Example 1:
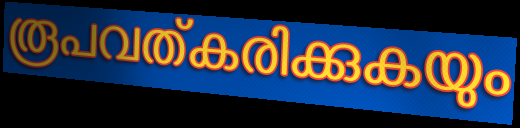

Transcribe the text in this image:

രൂപവത്കരിക്കുകയും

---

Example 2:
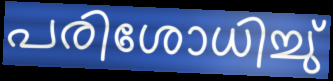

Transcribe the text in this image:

പരിശോധിച്ചു്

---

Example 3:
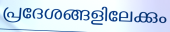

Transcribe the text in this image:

പ്രദേശങ്ങളിലേക്കും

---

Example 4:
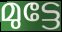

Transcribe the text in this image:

മുട്ടേ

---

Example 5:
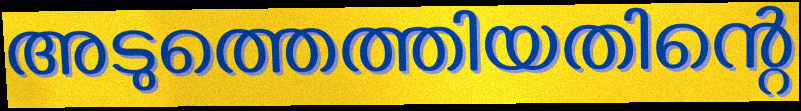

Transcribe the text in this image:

അടുത്തെത്തിയതിന്റെ